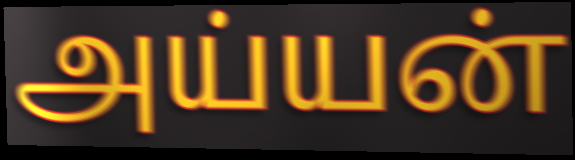
அய்யன்